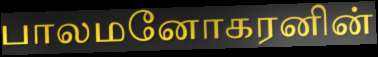
பாலமனோகரனின்